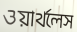
ওয়ার্থলেস